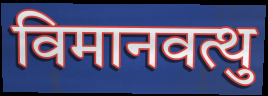
विमानवत्थु